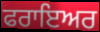
ਫਰਾਇਅਰ